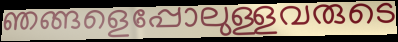
ഞങ്ങളെപ്പോലുള്ളവരുടെ